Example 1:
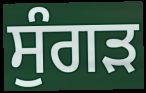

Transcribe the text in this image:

ਸੁੰਗੜ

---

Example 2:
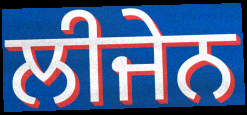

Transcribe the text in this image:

ਲੀਜੇਨ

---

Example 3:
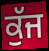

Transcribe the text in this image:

ਕੁੱਜ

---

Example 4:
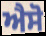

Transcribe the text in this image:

ਐਸੋ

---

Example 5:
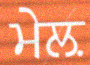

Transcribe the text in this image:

ਮੇਲ਼